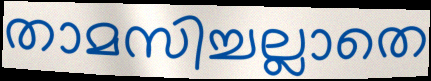
താമസിച്ചല്ലാതെ